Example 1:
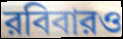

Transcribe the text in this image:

রবিবারও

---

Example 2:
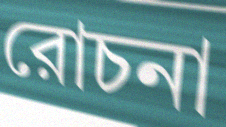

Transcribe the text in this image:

রোচনা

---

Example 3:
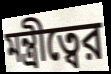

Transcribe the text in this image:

মন্ত্রীত্বের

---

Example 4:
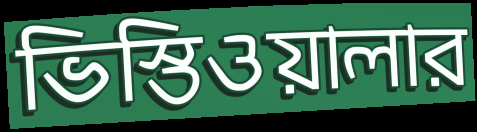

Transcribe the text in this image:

ভিস্তিওয়ালার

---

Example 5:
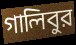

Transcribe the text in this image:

গালিবুর